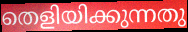
തെളിയിക്കുന്നതു